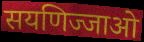
सयणिज्जाओ